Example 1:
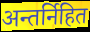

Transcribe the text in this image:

अन्तर्निहित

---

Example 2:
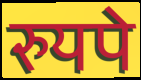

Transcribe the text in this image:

रुयपे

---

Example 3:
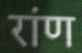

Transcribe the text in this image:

रांण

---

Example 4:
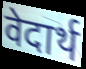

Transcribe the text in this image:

वेदार्थ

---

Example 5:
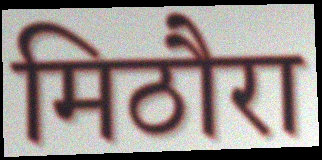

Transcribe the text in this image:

मिठौरा